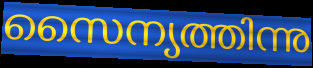
സൈന്യത്തിന്നു